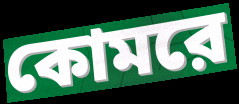
কোমরে